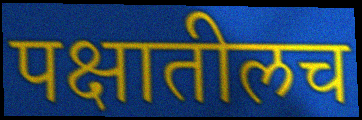
पक्षातीलच